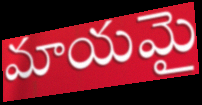
మాయమై